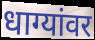
धाग्यांवर